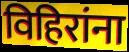
विहिरांना